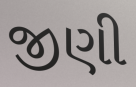
જીણી